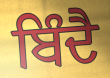
ਬਿੰਦੈ